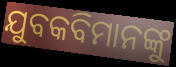
ଯୁବକବିମାନଙ୍କୁ